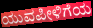
ಯುವಪೀಳಿಗೆಯ